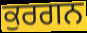
ਕੁਰਗਨ